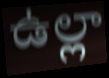
ఉల్లా